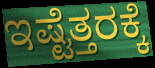
ಇಷ್ಟೆತ್ತರಕ್ಕೆ